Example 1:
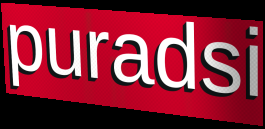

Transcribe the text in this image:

puradsi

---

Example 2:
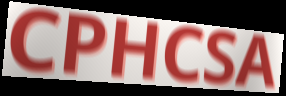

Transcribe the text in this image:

CPHCSA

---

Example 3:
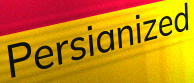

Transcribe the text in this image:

Persianized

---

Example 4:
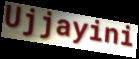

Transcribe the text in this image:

Ujjayini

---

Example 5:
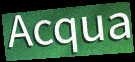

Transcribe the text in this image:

Acqua